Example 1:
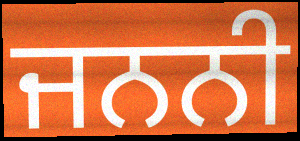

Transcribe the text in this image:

ਜਨਨੀ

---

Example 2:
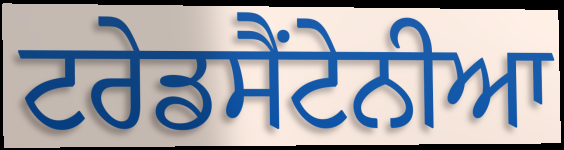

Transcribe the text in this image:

ਟਰੇਡਸੈਂਟੇਨੀਆ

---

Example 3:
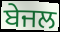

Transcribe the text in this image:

ਬੇਜਲ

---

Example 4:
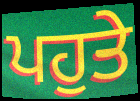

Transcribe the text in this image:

ਪਹੁਤੇ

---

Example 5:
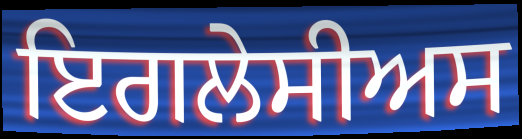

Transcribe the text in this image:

ਇਗਲੇਸੀਅਸ